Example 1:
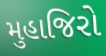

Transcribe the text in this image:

મુહાજિરો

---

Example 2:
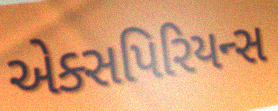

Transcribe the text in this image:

એક્સપિરિયન્સ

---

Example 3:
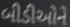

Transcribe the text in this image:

બીડીઓને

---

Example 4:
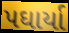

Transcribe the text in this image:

પઘાર્યા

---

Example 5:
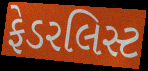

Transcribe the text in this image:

ફેડરલિસ્ટ